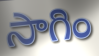
సాగిం